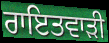
ਰਾਇਤਵਾੜੀ